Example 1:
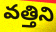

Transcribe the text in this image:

వత్తిని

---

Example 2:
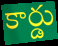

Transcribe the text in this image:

కార్డు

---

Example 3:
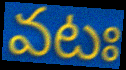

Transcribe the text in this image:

వటః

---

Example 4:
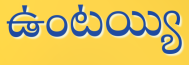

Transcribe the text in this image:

ఉంటయ్యి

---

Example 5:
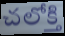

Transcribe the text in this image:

చలోక్తి